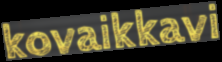
kovaikkavi